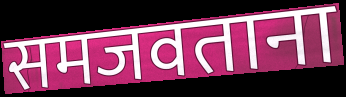
समजवताना